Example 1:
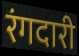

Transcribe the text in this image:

रंगदारी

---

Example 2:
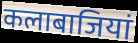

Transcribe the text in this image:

कलाबाजियां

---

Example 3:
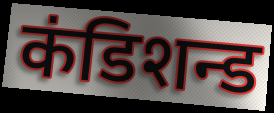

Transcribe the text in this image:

कंडिशन्ड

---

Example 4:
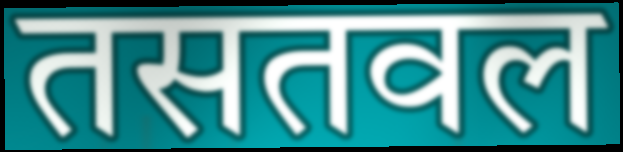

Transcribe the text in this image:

तसतवल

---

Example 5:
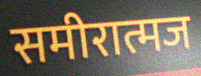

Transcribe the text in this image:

समीरात्मज